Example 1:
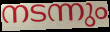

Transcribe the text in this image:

നടന്നും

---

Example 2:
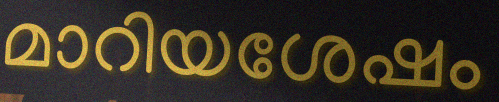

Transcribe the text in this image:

മാറിയശേഷം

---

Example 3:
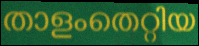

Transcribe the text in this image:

താളംതെറ്റിയ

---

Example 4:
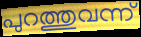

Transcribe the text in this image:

പുറത്തുവന്ന്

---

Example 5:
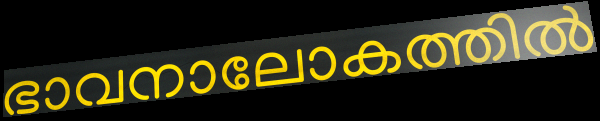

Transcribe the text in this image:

ഭാവനാലോകത്തിൽ